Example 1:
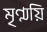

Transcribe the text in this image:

মৃণ্ময়ি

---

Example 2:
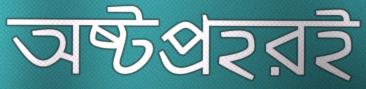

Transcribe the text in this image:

অষ্টপ্রহরই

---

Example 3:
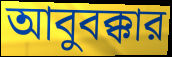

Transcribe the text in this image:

আবুবক্কার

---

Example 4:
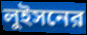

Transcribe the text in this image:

লুইসনের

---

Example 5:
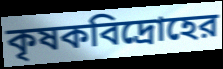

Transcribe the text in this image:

কৃষকবিদ্রোহের